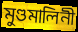
মুণ্ডমালিনী